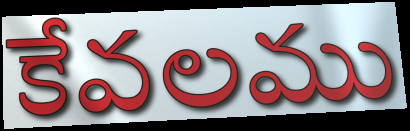
కేవలము